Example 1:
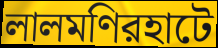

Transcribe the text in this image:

লালমণিরহাটে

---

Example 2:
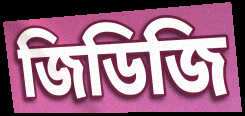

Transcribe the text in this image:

জিডিজি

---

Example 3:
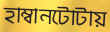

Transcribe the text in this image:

হাম্বানটোটায়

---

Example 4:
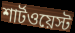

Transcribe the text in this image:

শার্টওয়েস্ট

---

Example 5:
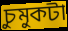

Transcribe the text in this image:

চুমুকটা